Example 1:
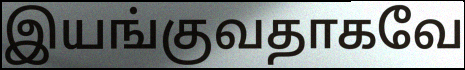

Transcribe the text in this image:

இயங்குவதாகவே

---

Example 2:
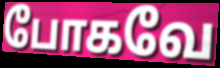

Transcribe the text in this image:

போகவே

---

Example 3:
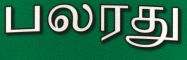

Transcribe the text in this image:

பலரது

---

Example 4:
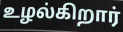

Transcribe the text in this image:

உழல்கிறார்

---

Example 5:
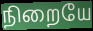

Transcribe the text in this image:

நிறையே